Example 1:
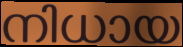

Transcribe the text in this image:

നിധായ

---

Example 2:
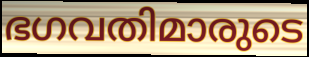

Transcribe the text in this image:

ഭഗവതിമാരുടെ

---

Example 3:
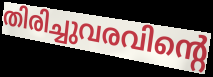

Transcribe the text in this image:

തിരിച്ചുവരവിന്റെ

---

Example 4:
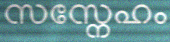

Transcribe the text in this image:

സസ്നേഹം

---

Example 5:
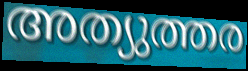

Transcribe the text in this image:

അത്യുത്തര